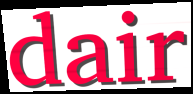
dair